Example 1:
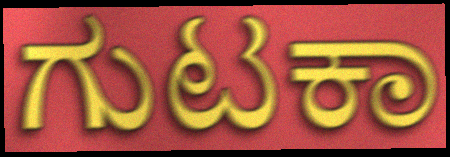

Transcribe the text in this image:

ಗುಟಕಾ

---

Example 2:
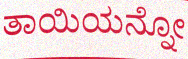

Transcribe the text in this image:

ತಾಯಿಯನ್ನೋ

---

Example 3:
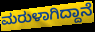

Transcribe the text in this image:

ಮರುಳಾಗಿದ್ದಾನೆ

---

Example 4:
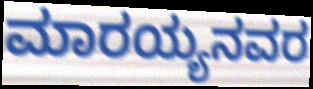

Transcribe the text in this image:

ಮಾರಯ್ಯನವರ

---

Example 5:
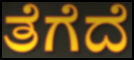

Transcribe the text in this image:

ತೆಗೆದೆ